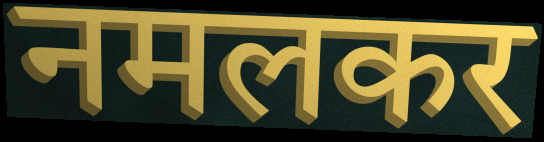
नमलकर